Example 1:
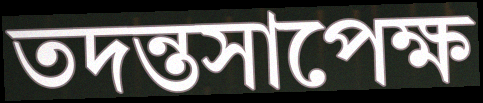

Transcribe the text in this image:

তদন্তসাপেক্ষ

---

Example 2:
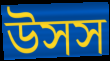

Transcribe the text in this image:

উসস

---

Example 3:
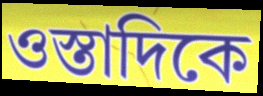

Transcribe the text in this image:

ওস্তাদিকে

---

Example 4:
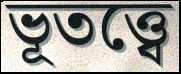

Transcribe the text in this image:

ভূতত্ত্বে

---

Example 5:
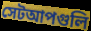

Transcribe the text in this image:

সেটআপগুলি